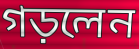
গড়লেন